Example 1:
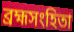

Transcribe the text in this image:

ব্রহ্মসংহিতা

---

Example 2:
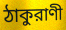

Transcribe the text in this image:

ঠাকুরাণী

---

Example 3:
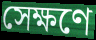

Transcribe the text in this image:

সেক্ষণে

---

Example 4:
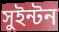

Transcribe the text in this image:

সুইন্টন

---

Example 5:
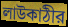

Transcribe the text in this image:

লাউকাঠীর